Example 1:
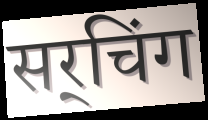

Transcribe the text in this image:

सर्चिंग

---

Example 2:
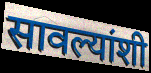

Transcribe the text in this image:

सावल्यांशी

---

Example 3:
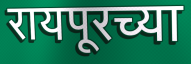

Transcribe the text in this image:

रायपूरच्या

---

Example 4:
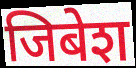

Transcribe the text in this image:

जिबेश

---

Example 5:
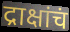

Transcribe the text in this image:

द्राक्षांचं